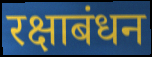
रक्षाबंधन